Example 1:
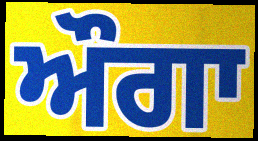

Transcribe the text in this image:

ਔਗਾ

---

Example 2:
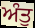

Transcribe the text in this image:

ਅੰਤੁ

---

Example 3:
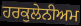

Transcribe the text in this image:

ਹਰਕੁਲੇਨੀਅਮ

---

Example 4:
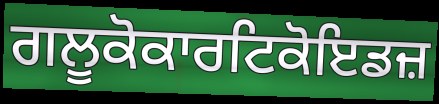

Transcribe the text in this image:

ਗਲੂਕੋਕਾਰਟਿਕੋਇਡਜ਼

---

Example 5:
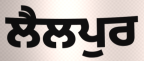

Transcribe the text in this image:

ਲੈਲਪੁਰ